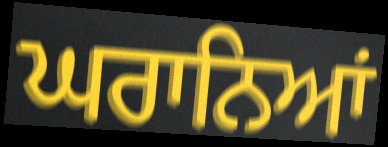
ਘਰਾਨਿਆਂ